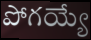
పోగయ్యే